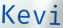
Kevi